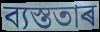
ব্যস্ততাৰ